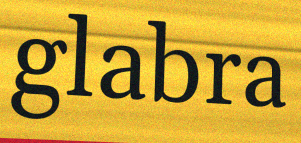
glabra